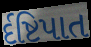
ર્દષ્ટિપાત